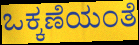
ಒಕ್ಕಣೆಯಂತೆ